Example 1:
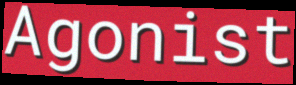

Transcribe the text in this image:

Agonist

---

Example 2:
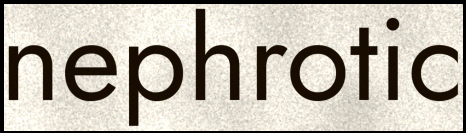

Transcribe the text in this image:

nephrotic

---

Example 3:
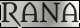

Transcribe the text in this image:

RANA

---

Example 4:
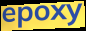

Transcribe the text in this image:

epoxy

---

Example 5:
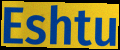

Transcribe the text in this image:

Eshtu